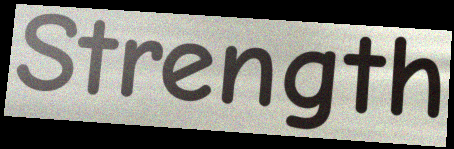
Strength